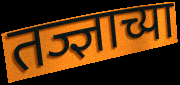
तज्ज्ञाच्या